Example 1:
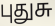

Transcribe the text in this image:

புதுசு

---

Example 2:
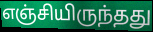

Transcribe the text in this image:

எஞ்சியிருந்தது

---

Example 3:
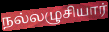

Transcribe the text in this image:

நல்லழுசியார்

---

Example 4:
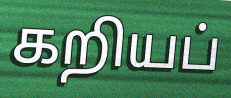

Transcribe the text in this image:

கறியப்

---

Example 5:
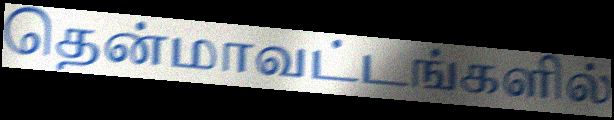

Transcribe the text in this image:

தென்மாவட்டங்களில்